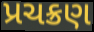
પ્રચક્રણ